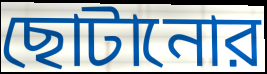
ছোটানোর